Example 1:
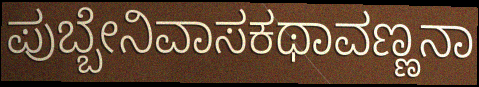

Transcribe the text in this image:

ಪುಬ್ಬೇನಿವಾಸಕಥಾವಣ್ಣನಾ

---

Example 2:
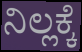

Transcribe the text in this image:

ನಿಲ್ಲಕ್ಕೆ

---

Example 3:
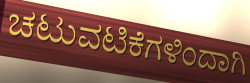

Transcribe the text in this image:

ಚಟುವಟಿಕೆಗಳಿಂದಾಗಿ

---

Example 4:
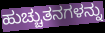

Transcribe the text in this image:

ಹುಚ್ಚುತನಗಳನ್ನು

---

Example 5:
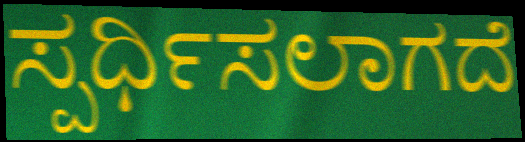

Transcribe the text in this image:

ಸ್ಪರ್ಧಿಸಲಾಗದೆ